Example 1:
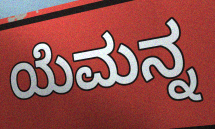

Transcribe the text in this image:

ಯೆಮನ್ನ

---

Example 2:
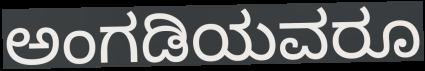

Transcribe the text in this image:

ಅಂಗಡಿಯವರೂ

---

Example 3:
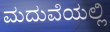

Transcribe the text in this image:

ಮದುವೆಯಲ್ಲಿ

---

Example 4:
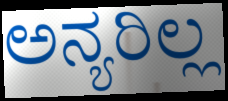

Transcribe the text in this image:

ಅನ್ಯರಿಲ್ಲ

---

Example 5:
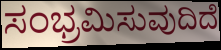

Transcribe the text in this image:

ಸಂಭ್ರಮಿಸುವುದಿದೆ